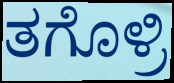
ತಗೊಳ್ರಿ